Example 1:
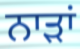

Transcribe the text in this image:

ਨਾੜਾਂ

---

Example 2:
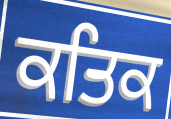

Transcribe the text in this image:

ਕਤਿਕ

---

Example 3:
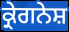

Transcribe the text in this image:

ਕ੍ਰੇਗਨੇਸ਼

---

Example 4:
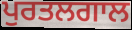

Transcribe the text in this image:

ਪੁਰਤਲਗਾਲ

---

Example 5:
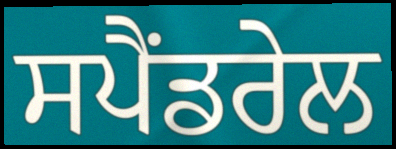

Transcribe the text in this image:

ਸਪੈਂਡਰੇਲ